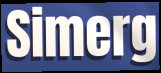
Simerg